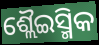
ଶ୍ଲୈଇସ୍ମିକ